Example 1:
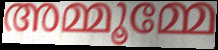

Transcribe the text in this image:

അമ്മൂമ്മേ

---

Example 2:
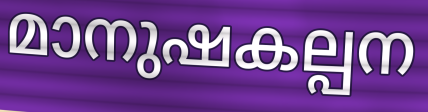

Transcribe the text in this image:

മാനുഷകല്പന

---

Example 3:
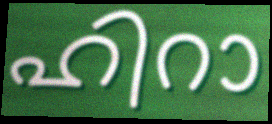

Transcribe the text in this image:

ഹിറാ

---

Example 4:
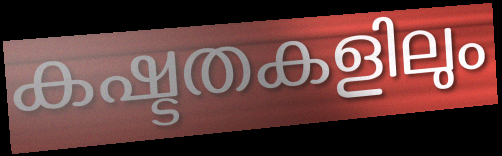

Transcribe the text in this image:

കഷ്ടതകളിലും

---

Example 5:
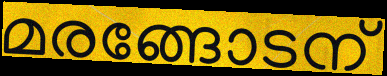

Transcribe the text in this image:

മരങ്ങോടന്